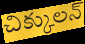
చిక్కులన్